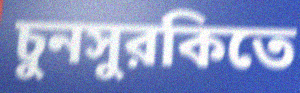
চুনসুরকিতে